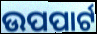
ଉପପାର୍ଟ